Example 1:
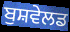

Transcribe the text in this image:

ਬੁਸ਼ਵੇਲਡ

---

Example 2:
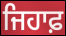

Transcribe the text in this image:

ਜਿਹਾਫ਼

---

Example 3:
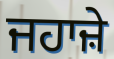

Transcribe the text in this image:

ਜਹਾਜ਼ੇ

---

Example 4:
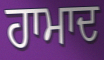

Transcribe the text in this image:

ਹਾਮਾਦ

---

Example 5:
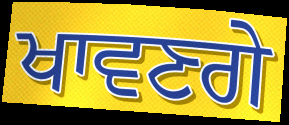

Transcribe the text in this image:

ਖਾਵਣਗੇ